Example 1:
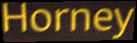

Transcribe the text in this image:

Horney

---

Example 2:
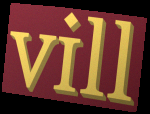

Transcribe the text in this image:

vill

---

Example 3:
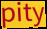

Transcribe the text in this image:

pity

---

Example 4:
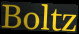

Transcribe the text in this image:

Boltz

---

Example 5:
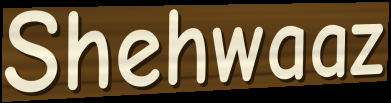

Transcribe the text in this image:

Shehwaaz